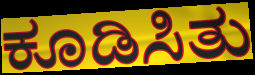
ಕೂಡಿಸಿತು